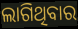
ଲାଗିଥିବାର